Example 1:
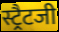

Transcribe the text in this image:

स्ट्रैटजी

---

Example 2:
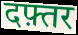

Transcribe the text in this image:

दफ़्तर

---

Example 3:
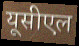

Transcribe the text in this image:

यूसीएल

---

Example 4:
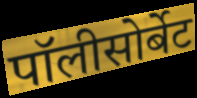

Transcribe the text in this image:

पॉलीसोर्बेट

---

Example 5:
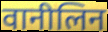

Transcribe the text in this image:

वानीलिन